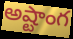
అష్టాంగ